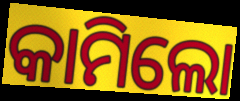
କାମିଲୋ